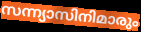
സന്ന്യാസിനിമാരും